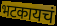
भटकायचं